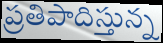
ప్రతిపాదిస్తున్న